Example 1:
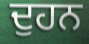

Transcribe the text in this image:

ਦੁਹਨ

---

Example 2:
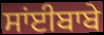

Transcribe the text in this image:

ਸਾਂਈਬਾਬੇ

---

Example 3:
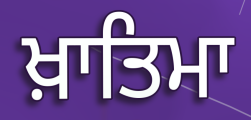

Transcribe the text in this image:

ਖ਼ਾਤਿਮਾ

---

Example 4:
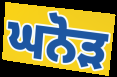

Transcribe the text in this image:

ਘਨੋੜ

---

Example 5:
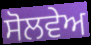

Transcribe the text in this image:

ਸੋਲਵੇਅ